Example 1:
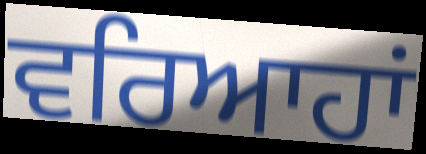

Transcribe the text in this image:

ਵਰਿਆਹਾਂ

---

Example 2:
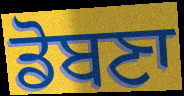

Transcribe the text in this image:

ਡੋਬਣਾ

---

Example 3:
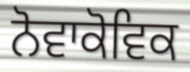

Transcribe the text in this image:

ਨੋਵਾਕੋਵਿਕ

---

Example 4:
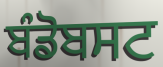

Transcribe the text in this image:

ਬੰਡੋਬਸਟ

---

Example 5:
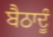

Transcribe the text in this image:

ਬੈਠਾਦੂੰ